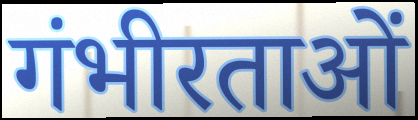
गंभीरताओं